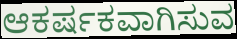
ಆಕರ್ಷಕವಾಗಿಸುವ